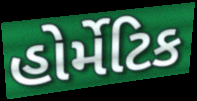
હોર્મેટિક